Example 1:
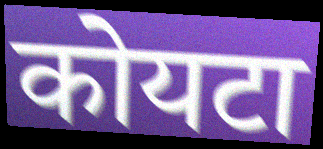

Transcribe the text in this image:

कोयटा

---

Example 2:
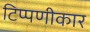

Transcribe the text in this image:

टिप्पणीकार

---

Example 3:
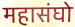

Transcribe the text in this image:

महासंघो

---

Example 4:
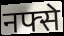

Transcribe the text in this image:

नफ्से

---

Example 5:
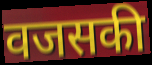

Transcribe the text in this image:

वजसकी